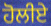
ਹੋਲੀਏ